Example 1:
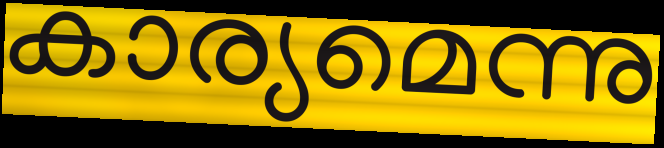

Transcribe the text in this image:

കാര്യമെന്നു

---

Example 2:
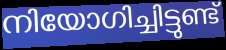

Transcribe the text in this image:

നിയോഗിച്ചിട്ടുണ്ട്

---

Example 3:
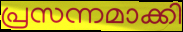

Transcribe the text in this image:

പ്രസന്നമാക്കി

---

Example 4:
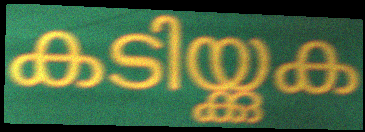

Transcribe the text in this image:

കടിയ്ക്കുക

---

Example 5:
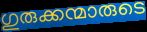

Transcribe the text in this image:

ഗുരുക്കന്മാരുടെ